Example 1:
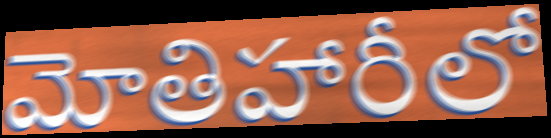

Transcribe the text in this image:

మోతిహారీలో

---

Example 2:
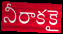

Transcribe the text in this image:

నీరాకకై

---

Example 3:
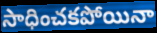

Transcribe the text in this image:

సాధించకపోయినా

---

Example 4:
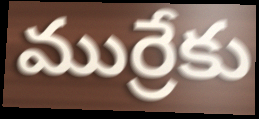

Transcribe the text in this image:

ముర్రేకు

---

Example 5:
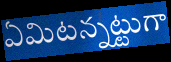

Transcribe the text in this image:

ఏమిటన్నట్టుగా